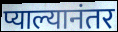
प्याल्यानंतर